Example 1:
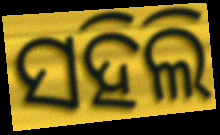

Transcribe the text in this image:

ସହିଲି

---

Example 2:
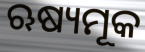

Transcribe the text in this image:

ଋଷ୍ୟମୂକ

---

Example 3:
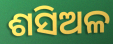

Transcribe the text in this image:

ଶସିଅଳ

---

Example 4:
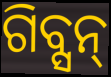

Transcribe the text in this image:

ଗିବ୍ସନ୍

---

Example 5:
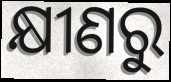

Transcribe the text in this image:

କ୍ଷୀଣରୁ